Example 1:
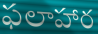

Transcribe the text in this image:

ఫలాహార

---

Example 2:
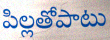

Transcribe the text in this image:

పిల్లతోపాటు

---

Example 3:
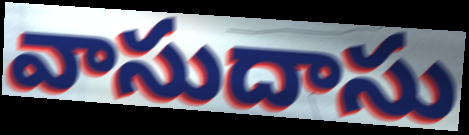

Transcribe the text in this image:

వాసుదాసు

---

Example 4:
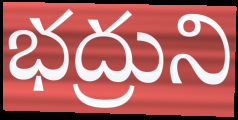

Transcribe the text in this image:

భద్రుని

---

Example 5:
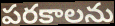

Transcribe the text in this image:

పరకాలను